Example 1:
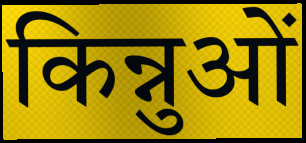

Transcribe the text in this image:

किन्नुओं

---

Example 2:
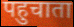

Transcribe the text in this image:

पहुचाता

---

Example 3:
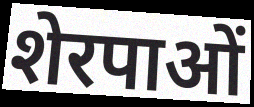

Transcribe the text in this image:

शेरपाओं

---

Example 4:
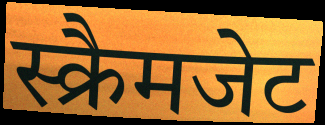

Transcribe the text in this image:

स्‍क्रैमजेट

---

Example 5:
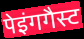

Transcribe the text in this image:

पेइंगगैस्ट